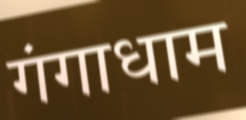
गंगाधाम